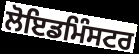
ਲੋਇਡਮਿੰਸਟਰ